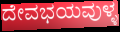
ದೇವಭಯವುಳ್ಳ